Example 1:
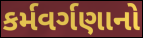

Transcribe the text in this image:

કર્મવર્ગણાનો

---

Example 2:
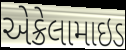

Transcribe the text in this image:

એક્રેલામાઇડ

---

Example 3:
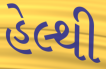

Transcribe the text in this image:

હેલ્થી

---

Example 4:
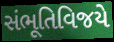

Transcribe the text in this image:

સંભૂતિવિજયે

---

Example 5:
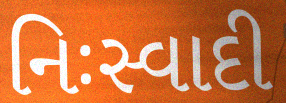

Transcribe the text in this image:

નિઃસ્વાદી